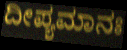
ದೀಪ್ಯಮಾನಃ